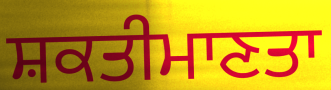
ਸ਼ਕਤੀਮਾਣਤਾ